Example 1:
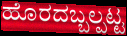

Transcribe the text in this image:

ಹೊರದಬ್ಬಲ್ಪಟ್ಟ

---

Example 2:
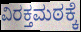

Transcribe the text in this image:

ವಿರಕ್ತಮಠಕ್ಕೆ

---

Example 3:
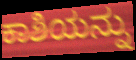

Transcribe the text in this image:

ಕಾಶಿಯನ್ನು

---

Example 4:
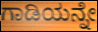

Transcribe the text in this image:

ಗಾಡಿಯನ್ನೇ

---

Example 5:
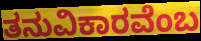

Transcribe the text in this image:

ತನುವಿಕಾರವೆಂಬ